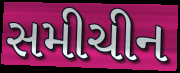
સમીચીન